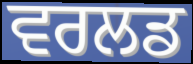
ਵਰਲਡ